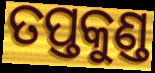
ତପ୍ତକୁଣ୍ଡ